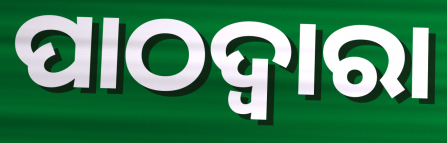
ପାଠଦ୍ଵାରା